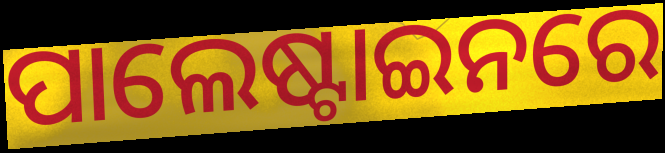
ପାଲେଷ୍ଟାଇନରେ